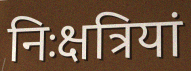
निःक्षत्रियां